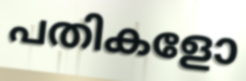
പതികളോ